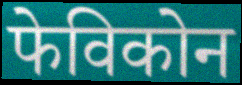
फेविकोन